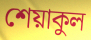
শেয়াকুল